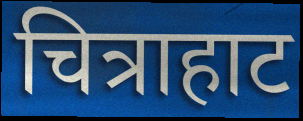
चित्राहाट